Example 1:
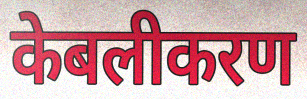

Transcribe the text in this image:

केबलीकरण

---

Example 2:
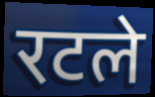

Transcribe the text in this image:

रटले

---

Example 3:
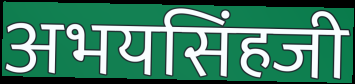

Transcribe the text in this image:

अभयसिंहजी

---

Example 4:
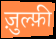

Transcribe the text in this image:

ज़ुल्फ़ी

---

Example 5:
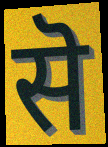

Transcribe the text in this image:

सॆ